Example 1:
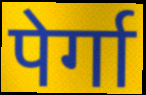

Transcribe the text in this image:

पेर्गा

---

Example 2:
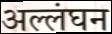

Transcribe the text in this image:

अल्लंघन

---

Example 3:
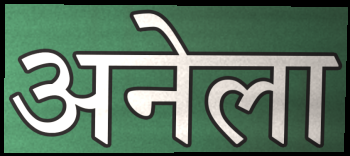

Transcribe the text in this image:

अनेला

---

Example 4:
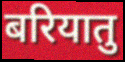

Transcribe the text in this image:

बरियातु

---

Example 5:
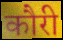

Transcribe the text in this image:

कौरी